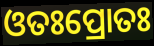
ଓତଃପ୍ରୋତଃ